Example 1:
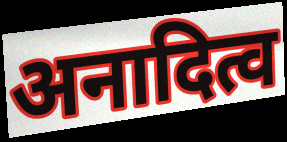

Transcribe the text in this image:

अनादित्व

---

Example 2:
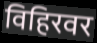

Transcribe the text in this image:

विहिरवर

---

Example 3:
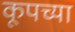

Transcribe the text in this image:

कूपच्या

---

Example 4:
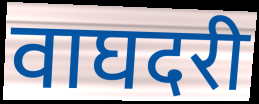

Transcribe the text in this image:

वाघदरी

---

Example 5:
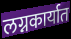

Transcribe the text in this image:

लग्नकार्यात